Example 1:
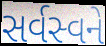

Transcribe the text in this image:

સર્વસ્વને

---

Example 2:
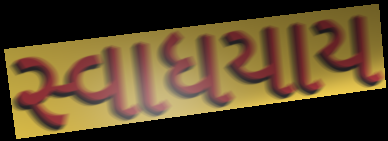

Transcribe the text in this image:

સ્વાધયાય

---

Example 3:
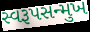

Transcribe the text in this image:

સ્વરૂપસન્મુખ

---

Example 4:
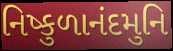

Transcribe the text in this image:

નિષ્કુળાનંદમુનિ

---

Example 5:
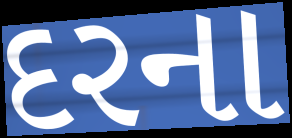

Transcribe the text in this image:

દરના